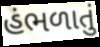
હંભળાતું